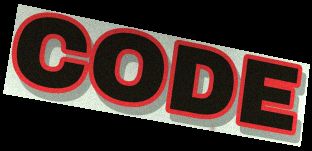
CODE